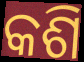
କଶି